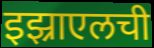
इझ्राएलची